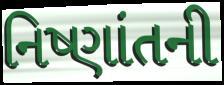
નિષ્ણાંતની